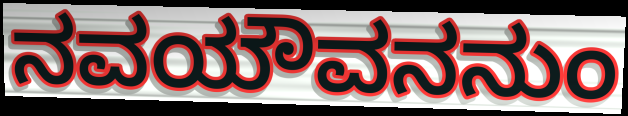
ನವಯೌವನನುಂ